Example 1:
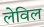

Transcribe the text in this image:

लेविल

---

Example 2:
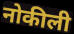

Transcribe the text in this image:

नोकीली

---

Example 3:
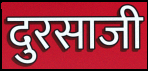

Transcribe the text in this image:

दुरसाजी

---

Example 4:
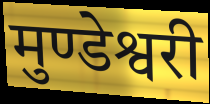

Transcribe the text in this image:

मुण्डेश्वरी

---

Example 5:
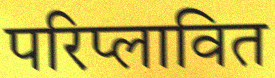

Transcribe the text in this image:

परिप्लावित